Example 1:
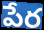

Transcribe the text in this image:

పేర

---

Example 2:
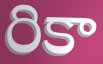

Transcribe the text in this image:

రికా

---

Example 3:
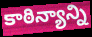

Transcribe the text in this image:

కాఠిన్యాన్ని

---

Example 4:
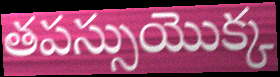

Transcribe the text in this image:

తపస్సుయొక్క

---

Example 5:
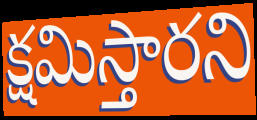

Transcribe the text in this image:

క్షమిస్తారని